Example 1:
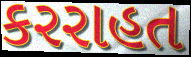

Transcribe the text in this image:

કરરાહત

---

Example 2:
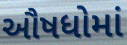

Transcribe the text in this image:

ઔષધોમાં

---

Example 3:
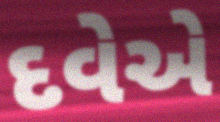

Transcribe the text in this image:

દવેએ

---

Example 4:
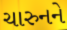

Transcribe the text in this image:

ચારુનને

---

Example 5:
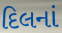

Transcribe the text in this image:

દિલનાં